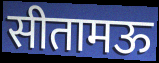
सीतामऊ